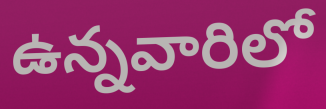
ఉన్నవారిలో